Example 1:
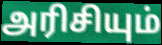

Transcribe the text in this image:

அரிசியும்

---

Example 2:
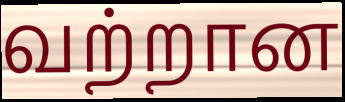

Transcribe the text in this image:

வற்றான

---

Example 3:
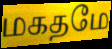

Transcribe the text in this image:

மகதமே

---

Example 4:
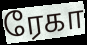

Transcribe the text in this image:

ரேகா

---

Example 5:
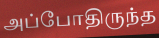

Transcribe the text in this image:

அப்போதிருந்த